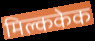
मिल्ककेक